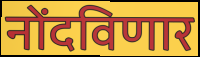
नोंदविणार